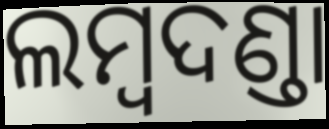
ଲମ୍ୱଦଣ୍ଡା